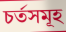
চৰ্তসমূহ